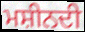
ਮਸ਼ੀਨਦੀ